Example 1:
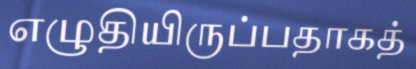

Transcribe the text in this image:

எழுதியிருப்பதாகத்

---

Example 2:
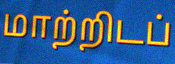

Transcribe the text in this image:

மாற்றிடப்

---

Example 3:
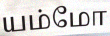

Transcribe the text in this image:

யம்மோ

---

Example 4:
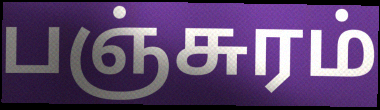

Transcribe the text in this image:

பஞ்சுரம்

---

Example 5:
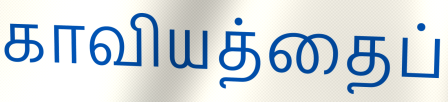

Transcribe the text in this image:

காவியத்தைப்